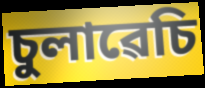
চুলাৱেচি